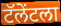
टॅलेंटला